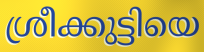
ശ്രീക്കുട്ടിയെ